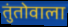
तुंतोवाला